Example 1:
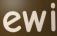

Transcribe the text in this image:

ewi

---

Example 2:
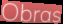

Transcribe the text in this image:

Obras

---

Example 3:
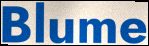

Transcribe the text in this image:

Blume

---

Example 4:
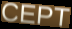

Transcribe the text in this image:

CEPT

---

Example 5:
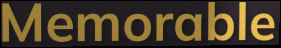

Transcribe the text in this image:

Memorable